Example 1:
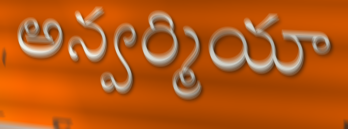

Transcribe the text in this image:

అన్వర్మియా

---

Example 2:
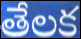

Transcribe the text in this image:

తేలక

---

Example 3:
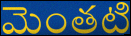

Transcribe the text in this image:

మెంతటి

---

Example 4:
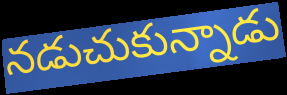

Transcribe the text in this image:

నడుచుకున్నాడు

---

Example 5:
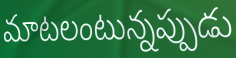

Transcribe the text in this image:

మాటలంటున్నప్పుడు